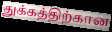
துக்கத்திற்கான